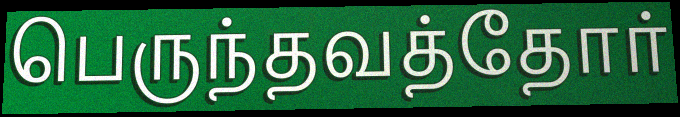
பெருந்தவத்தோர்